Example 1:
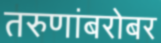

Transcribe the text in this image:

तरुणांबरोबर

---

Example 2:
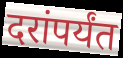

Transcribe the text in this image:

दरांपर्यंत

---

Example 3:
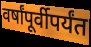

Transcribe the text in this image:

वर्षांपूर्वीपर्यंत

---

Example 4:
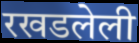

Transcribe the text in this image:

रखडलेली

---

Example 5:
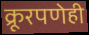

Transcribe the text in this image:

क्रूरपणेही